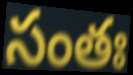
సంతః